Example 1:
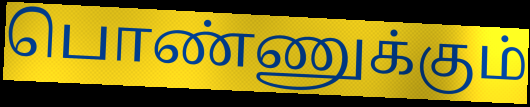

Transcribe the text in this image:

பொண்ணுக்கும்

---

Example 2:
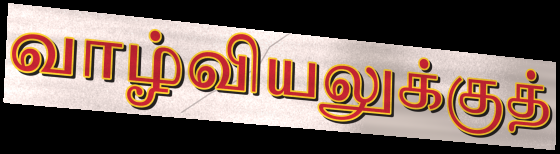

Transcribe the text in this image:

வாழ்வியலுக்குத்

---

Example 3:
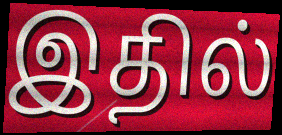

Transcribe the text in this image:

இதில்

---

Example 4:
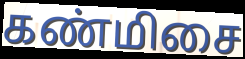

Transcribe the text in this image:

கண்மிசை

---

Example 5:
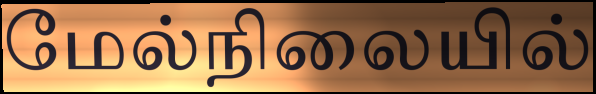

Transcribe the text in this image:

மேல்நிலையில்